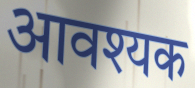
आवश्यक